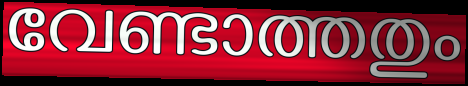
വേണ്ടാത്തതും